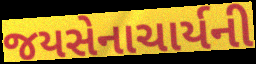
જયસેનાચાર્યની